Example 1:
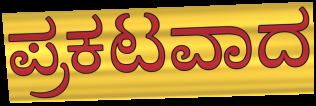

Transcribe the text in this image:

ಪ್ರಕಟವಾದ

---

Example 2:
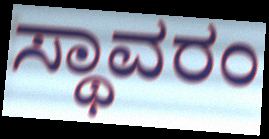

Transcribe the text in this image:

ಸ್ಥಾವರಂ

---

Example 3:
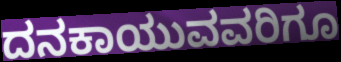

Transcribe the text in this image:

ದನಕಾಯುವವರಿಗೂ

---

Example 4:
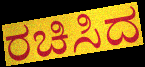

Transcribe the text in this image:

ರಚಿಸಿದ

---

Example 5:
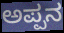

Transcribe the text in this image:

ಅಪ್ಪನ